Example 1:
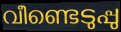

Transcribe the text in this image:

വീണ്ടെടുപ്പു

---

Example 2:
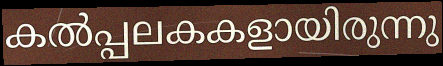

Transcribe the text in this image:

കൽപ്പലകകളായിരുന്നു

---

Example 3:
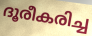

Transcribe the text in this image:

ദൂരീകരിച്ച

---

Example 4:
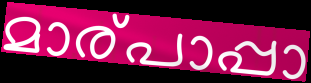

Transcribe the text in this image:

മാര്പാപ്പാ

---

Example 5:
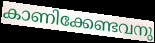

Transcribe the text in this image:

കാണിക്കേണ്ടവനു